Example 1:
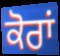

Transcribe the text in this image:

ਕੋਰਾਂ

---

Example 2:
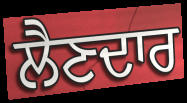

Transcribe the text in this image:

ਲੈਣਦਾਰ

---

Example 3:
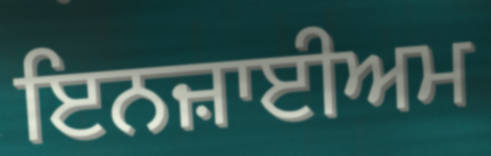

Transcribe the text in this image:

ਇਨਜ਼ਾਈਅਮ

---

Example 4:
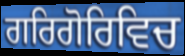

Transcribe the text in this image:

ਗਰਿਗੋਰਿਵਿਚ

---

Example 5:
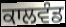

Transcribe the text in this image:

ਕਾਲਵੰਡ